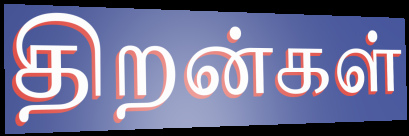
திறன்கள்